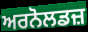
ਅਰਨੋਲਡਜ਼